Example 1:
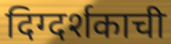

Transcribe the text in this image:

दिग्दर्शकाची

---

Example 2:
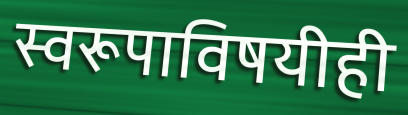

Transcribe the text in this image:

स्वरूपाविषयीही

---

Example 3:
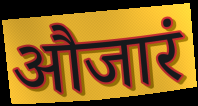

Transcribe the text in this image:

औजारं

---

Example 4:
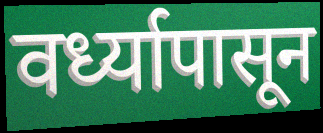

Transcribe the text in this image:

वर्ध्यापासून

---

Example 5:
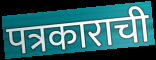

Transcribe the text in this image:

पत्रकाराची